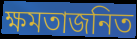
ক্ষমতাজনিত